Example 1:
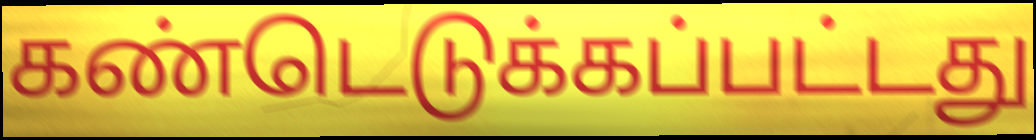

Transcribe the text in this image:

கண்டெடுக்கப்பட்டது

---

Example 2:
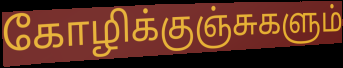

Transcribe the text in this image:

கோழிக்குஞ்சுகளும்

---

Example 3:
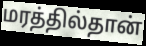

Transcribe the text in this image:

மரத்தில்தான்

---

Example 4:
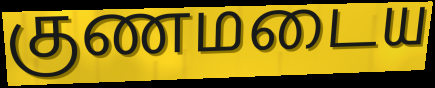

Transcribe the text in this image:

குணமடைய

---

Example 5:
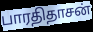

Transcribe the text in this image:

பாரதிதாசன்